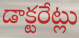
డాక్టరేట్లు